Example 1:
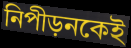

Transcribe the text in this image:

নিপীড়নকেই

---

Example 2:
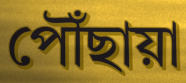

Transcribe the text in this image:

পৌঁছায়া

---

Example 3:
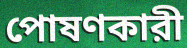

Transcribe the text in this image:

পোষণকারী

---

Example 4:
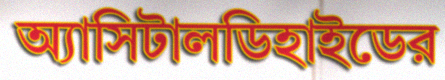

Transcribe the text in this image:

অ্যাসিটালডিহাইডের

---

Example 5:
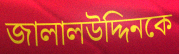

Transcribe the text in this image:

জালালউদ্দিনকে